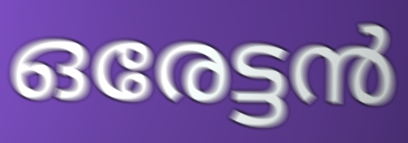
ഒരേട്ടൻ